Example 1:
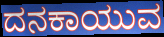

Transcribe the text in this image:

ದನಕಾಯುವ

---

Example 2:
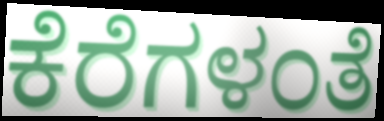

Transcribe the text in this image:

ಕೆರೆಗಳಂತೆ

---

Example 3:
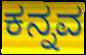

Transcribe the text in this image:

ಕನ್ನವ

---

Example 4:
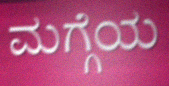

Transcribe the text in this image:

ಮಗ್ಗೆಯ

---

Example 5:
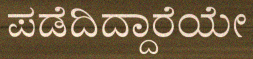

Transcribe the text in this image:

ಪಡೆದಿದ್ದಾರೆಯೇ